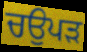
ਚਉਪੜ